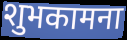
शुभकामना